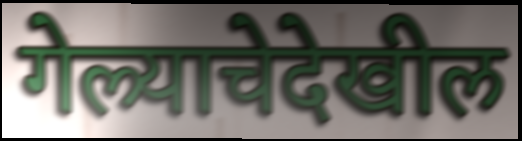
गेल्याचेदेखील